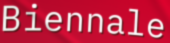
Biennale